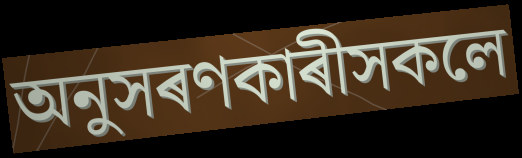
অনুসৰণকাৰীসকলে